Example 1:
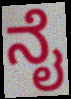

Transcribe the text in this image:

ನೈ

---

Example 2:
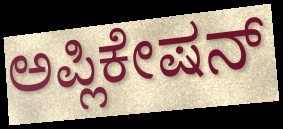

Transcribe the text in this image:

ಅಪ್ಲಿಕೇಷನ್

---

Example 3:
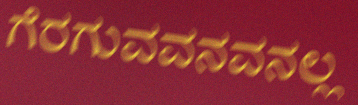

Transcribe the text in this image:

ಗೆರಗುವವನವನಲ್ಲ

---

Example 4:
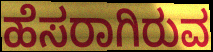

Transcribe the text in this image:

ಹೆಸರಾಗಿರುವ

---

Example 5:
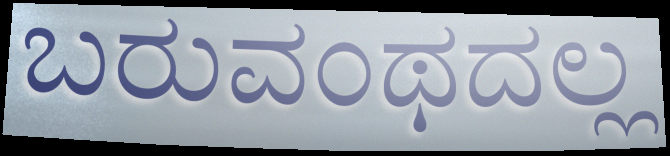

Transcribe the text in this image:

ಬರುವಂಥದಲ್ಲ